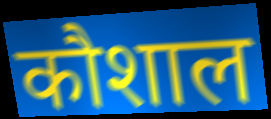
कौशाल